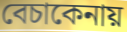
বেচাকেনায়